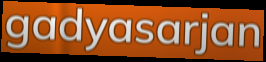
gadyasarjan